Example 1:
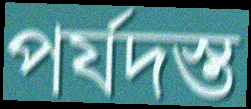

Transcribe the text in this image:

পর্যদস্ত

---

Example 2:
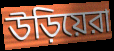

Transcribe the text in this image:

উড়িয়েরা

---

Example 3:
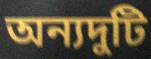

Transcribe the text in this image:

অন্যদুটি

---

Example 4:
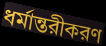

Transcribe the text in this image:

ধর্মান্তরীকরণ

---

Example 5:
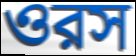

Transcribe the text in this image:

ওরস